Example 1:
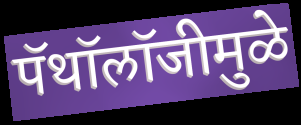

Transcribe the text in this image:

पॅथॉलॉजीमुळे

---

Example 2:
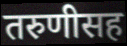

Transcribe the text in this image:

तरुणीसह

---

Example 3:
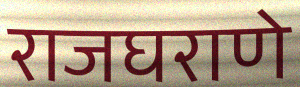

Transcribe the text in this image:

राजघराणे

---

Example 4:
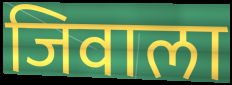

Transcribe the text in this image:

जिवाला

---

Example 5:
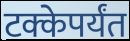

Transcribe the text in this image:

टक्केपर्यंत